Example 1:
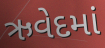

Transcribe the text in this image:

ઋવેદમાં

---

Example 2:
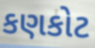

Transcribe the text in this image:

કણકોટ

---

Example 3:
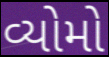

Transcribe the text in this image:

વ્યોમો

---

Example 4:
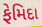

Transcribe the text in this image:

ફેમિદા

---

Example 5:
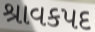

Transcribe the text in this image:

શ્રાવકપદ